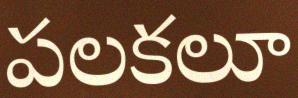
పలకలూ